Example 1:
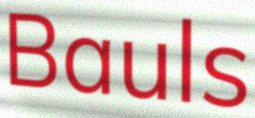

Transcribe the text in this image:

Bauls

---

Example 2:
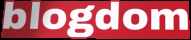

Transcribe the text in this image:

blogdom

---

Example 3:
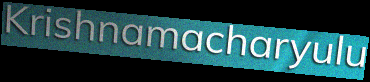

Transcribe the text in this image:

Krishnamacharyulu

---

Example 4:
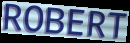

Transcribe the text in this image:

ROBERT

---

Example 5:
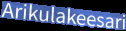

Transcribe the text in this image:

Arikulakeesari